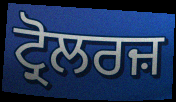
ਟ੍ਰੋਲਰਜ਼